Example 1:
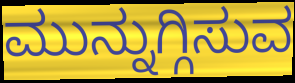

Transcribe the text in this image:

ಮುನ್ನುಗ್ಗಿಸುವ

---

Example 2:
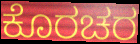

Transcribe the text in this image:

ಕೊರಚರ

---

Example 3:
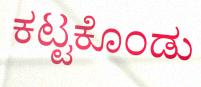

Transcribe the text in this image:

ಕಟ್ಟಕೊಂಡು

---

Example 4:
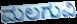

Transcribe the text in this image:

ಮಲಗುವಿ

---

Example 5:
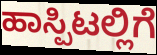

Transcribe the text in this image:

ಹಾಸ್ಪಿಟಲ್ಲಿಗೆ